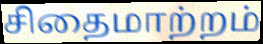
சிதைமாற்றம்